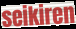
seikiren